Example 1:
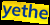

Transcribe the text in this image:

yethe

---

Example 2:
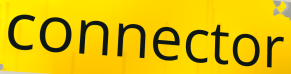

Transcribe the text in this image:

connector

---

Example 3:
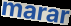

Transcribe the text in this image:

marar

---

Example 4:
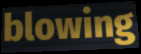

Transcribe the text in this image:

blowing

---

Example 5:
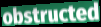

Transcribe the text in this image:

obstructed